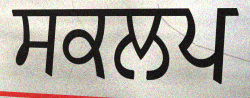
ਸਕਲਪ